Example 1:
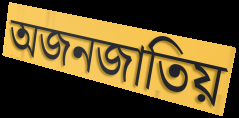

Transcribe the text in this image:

অজনজাতিয়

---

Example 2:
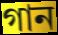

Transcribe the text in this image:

গান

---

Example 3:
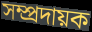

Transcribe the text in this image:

সম্প্ৰদায়ক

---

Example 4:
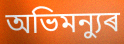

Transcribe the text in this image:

অভিমন্যুৰ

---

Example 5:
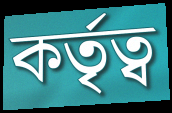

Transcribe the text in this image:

কৰ্তৃত্ব